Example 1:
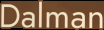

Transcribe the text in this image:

Dalman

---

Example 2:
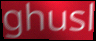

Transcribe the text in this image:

ghusl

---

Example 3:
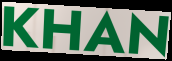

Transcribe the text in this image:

KHAN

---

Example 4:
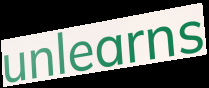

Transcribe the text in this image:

unlearns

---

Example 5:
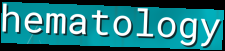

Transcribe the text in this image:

hematology